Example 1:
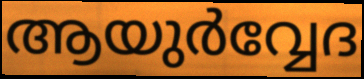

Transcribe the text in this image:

ആയുർവ്വേദ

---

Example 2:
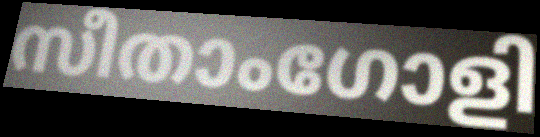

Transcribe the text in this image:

സീതാംഗോളി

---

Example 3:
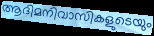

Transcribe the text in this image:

ആദിമനിവാസികളുടെയും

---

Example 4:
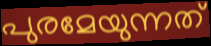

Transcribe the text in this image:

പുരമേയുന്നത്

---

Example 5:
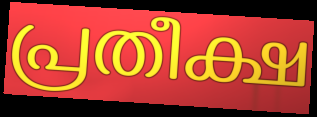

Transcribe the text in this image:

പ്രതീക്ഷ